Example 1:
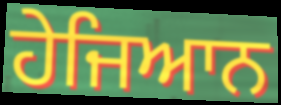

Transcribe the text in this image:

ਹੇਜਿਆਨ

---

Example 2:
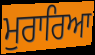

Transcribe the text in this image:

ਮੁਰਾਰਿਆ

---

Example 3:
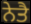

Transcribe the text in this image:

ਨੇਤੈ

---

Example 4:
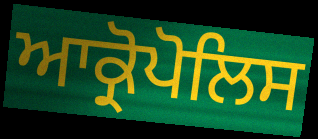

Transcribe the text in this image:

ਆਕ੍ਰੋਪੋਲਿਸ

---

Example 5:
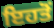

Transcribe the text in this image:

ਇਹਤੋਂ